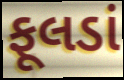
ફૂલડાં